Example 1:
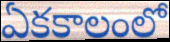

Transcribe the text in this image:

ఏకకాలంలో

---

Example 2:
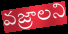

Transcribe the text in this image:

వజ్రాలని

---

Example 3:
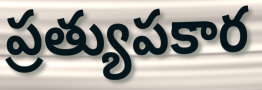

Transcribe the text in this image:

ప్రత్యుపకార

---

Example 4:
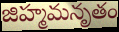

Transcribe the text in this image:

జిహ్మమనృతం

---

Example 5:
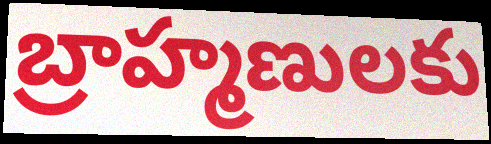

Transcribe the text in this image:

బ్రాహ్మణులకు